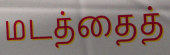
மடத்தைத்